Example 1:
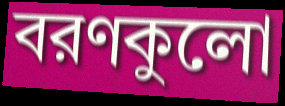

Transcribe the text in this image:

বরণকুলো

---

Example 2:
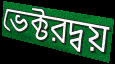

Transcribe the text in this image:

ভেক্টরদ্বয়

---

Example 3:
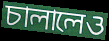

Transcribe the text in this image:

চালালেও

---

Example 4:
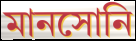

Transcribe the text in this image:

মানসোনি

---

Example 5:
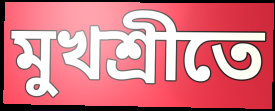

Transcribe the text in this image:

মুখশ্রীতে